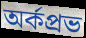
অর্কপ্রভ